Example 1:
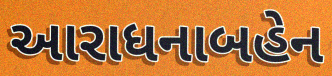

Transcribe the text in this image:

આરાધનાબહેન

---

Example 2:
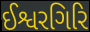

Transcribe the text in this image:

ઈશ્વરગિરિ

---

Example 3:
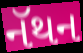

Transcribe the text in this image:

નૅથન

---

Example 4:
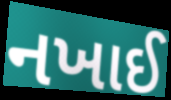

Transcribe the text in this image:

નખાઈ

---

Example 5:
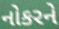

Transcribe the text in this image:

નોકરને